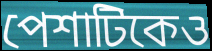
পেশাটিকেও